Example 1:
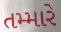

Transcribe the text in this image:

તમ્મારે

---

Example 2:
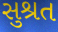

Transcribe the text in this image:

સુશ્રત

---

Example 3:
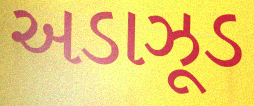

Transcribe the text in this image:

અડાઝૂડ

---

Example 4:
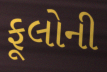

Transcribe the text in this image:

ફૂલોની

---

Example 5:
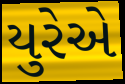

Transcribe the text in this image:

યુરેએ